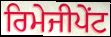
ਰਿਮੇਜੀਪੇਂਟ